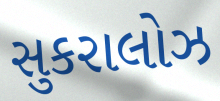
સુકરાલોઝ